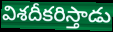
విశదీకరిస్తాడు